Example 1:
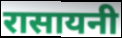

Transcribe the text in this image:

रासायनी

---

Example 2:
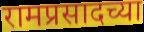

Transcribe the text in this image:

रामप्रसादच्या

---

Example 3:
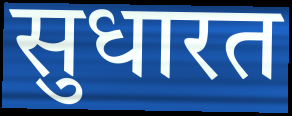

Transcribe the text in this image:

सुधारत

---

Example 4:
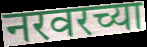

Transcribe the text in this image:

नरवरच्या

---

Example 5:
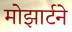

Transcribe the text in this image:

मोझार्टने